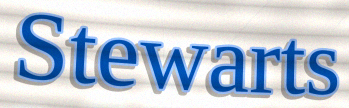
Stewarts